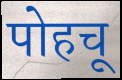
पोहचू